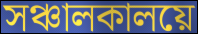
সঞ্চালকালয়ে